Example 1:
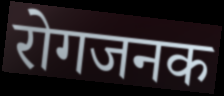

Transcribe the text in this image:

रोगजनक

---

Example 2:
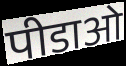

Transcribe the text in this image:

पीडाओ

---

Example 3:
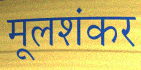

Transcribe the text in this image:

मूलशंकर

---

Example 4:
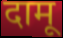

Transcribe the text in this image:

दामू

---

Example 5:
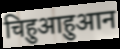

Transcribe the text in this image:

चिहुआहुआन